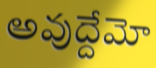
అవుద్దేమో